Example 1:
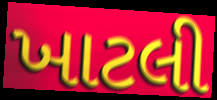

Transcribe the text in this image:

ખાટલી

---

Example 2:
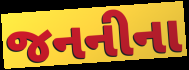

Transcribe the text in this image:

જનનીના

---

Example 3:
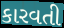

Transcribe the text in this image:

કારવતી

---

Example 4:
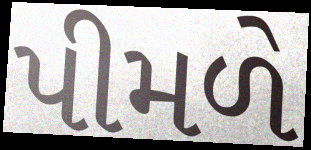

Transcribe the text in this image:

પીમળે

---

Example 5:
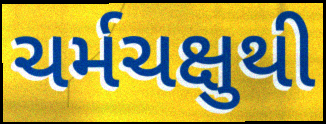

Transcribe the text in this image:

ચર્મચક્ષુથી